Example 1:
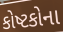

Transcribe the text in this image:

કોષ્ટકોના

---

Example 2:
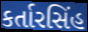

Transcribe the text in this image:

કર્તારસિંહ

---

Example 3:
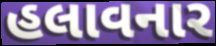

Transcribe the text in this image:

હલાવનાર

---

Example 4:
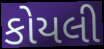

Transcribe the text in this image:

કોયલી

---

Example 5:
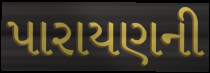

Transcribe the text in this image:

પારાયણની